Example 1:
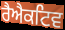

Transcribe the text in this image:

ਰੈਐਕਟਿਵ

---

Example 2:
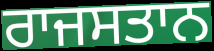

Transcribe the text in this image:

ਰਾਜਸਤਾਨ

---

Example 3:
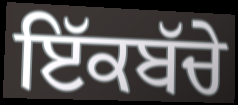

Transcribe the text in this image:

ਇੱਕਬੱਚੇ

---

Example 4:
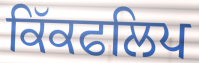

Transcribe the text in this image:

ਕਿੱਕਫਲਿਪ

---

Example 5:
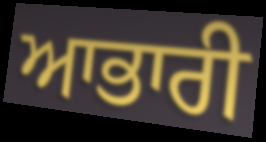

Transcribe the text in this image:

ਆਭਾਰੀ